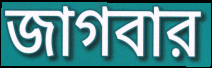
জাগবার